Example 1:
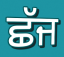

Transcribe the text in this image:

ਛੱਜ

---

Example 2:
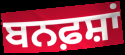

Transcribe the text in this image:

ਬਨਫ਼ਸ਼ਾਂ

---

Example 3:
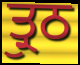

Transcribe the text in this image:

ਤ੍ਰੁਠ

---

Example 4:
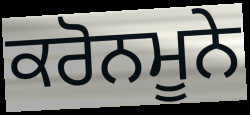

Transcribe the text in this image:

ਕਰੋਨਮੂਨੇ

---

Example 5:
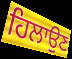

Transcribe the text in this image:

ਹਿਲਾਉਣ